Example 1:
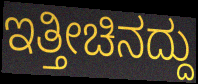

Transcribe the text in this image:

ಇತ್ತೀಚಿನದ್ದು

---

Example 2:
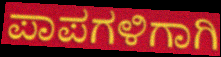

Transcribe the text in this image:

ಪಾಪಗಳಿಗಾಗಿ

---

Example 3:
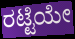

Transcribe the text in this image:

ರಟ್ಟೆಯೇ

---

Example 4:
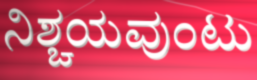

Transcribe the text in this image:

ನಿಶ್ಚಯವುಂಟು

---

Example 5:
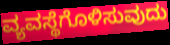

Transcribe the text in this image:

ವ್ಯವಸ್ಥೆಗೊಳಿಸುವುದು